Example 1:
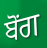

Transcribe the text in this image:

ਬੋਂਗ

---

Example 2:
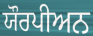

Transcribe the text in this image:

ਯੌਰਪੀਅਨ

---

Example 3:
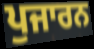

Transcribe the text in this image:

ਪੁਜਾਰਨ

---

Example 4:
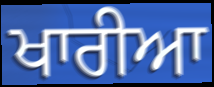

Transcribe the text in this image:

ਖਾਰੀਆ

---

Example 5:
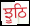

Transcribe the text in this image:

ਝੂਠਿ